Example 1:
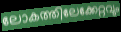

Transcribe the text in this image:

ലോകത്തിലേക്കേറ്റവും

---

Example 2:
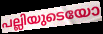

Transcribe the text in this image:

പല്ലിയുടെയോ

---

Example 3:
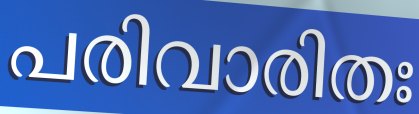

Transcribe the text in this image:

പരിവാരിതഃ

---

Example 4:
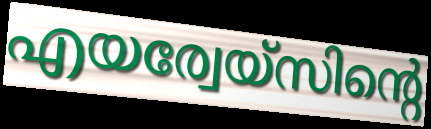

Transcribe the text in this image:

എയര്വേയ്സിന്റെ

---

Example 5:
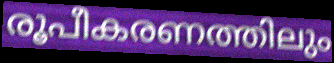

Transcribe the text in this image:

രൂപീകരണത്തിലും